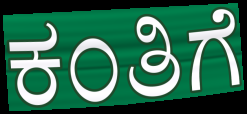
ಕಂತಿಗೆ